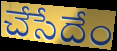
చేసేదేం